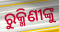
ରୁକ୍ମିଣୀଙ୍କୁ